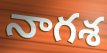
నాగశ